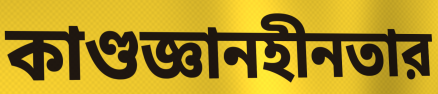
কাণ্ডজ্ঞানহীনতার